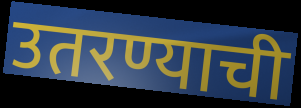
उतरण्याची